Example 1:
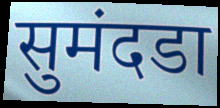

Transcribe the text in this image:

सुमंदडा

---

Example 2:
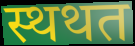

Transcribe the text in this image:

स्थथत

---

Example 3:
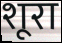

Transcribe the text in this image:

शूरा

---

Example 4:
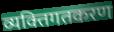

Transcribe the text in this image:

व्यक्तिगतकरण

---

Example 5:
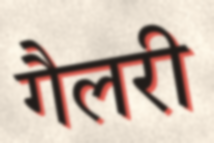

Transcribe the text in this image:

गैलरी